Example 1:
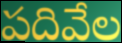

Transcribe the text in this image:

పదివేల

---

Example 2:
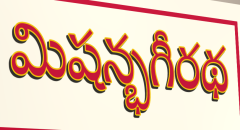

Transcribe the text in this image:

మిషన్భగీరథ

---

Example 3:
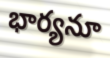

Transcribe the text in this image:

భార్యనూ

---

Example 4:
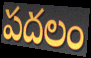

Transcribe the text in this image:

పదలం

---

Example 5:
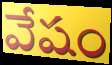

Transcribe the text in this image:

వేషం